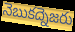
నెబుకద్నెజరు